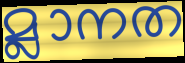
മ്ലാനത